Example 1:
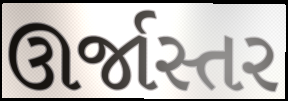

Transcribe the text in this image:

ઊર્જાસ્તર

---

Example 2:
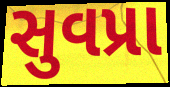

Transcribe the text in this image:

સુવપ્રા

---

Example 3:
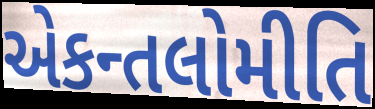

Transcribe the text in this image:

એકન્તલોમીતિ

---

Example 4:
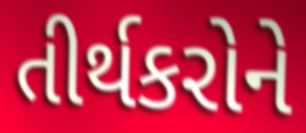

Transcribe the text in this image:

તીર્થકરોને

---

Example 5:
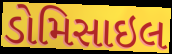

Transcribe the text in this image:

ડોમિસાઇલ